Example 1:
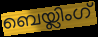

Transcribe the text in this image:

ബെയ്ലിംഗ്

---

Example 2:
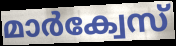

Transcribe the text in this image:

മാർക്വേസ്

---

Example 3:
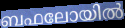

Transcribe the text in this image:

ബഫലോയിൽ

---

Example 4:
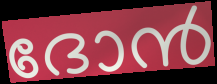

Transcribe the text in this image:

ദോൻ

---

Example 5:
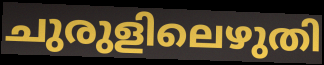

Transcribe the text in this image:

ചുരുളിലെഴുതി